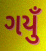
ગયુઁ